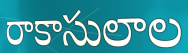
రాకాసులాల